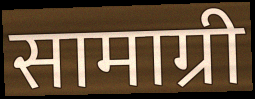
सामाग्री